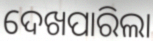
ଦେଖପାରିଲା